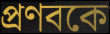
প্রণবকে